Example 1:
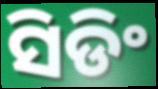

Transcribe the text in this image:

ସିଡିଂ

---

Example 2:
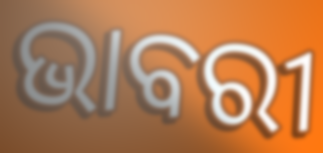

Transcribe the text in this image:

ଭାବରୀ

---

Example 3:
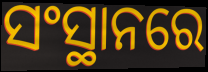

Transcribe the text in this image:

ସଂସ୍ଥାନରେ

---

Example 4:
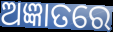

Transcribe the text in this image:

ଅଜ୍ଞାତରେ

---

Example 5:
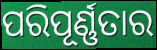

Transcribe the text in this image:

ପରିପୂର୍ଣ୍ଣତାର